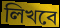
লিখবে